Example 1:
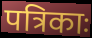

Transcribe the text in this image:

पत्रिकाः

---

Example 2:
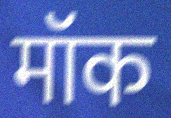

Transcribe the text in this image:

मॉक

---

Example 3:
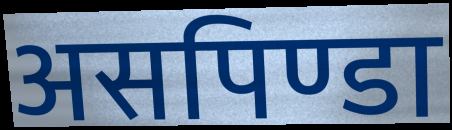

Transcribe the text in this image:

असपिण्डा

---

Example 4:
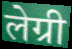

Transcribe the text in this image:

लेग्री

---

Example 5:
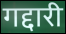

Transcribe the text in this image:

गद्दारी